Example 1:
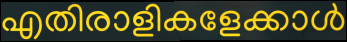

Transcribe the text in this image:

എതിരാളികളേക്കാൾ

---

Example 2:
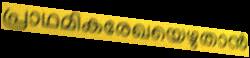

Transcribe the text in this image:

പ്രാഥമികരേഖയെഴുതാൻ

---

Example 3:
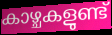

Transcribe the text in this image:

കാഴ്ചകളുണ്ട്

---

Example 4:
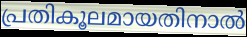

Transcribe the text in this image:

പ്രതികൂലമായതിനാൽ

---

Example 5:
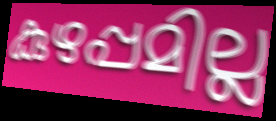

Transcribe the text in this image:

കുഴപ്പമില്ല